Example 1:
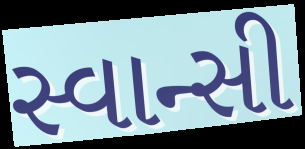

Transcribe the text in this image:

સ્વાન્સી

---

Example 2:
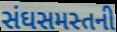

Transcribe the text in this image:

સંઘસમસ્તની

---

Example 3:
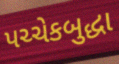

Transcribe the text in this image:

પચ્ચેકબુદ્ધા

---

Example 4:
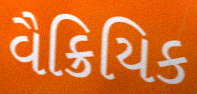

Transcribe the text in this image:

વૈક્રિયિક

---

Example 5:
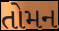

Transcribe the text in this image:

તોમન